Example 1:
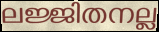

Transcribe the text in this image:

ലജ്ജിതനല്ല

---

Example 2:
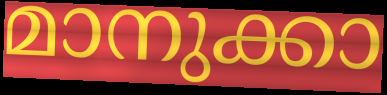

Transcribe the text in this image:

മാനുക്കാ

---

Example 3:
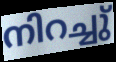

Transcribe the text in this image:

നിറച്ചു്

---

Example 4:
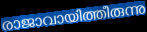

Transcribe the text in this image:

രാജാവായിത്തീരുന്നു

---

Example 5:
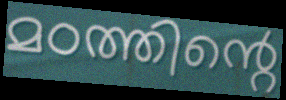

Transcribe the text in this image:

മഠത്തിന്റെ